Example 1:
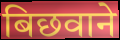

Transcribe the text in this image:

बिछवाने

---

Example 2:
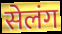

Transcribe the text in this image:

सेलंग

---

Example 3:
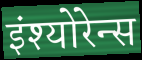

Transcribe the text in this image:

इंश्योरेन्स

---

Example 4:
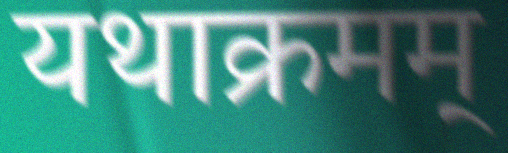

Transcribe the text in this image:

यथाक्रमम्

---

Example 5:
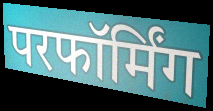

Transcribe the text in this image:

परफॉर्मिंग